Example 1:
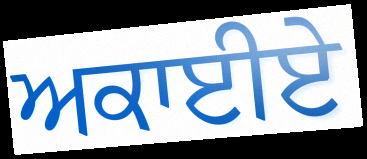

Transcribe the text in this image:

ਅਕਾਈਏ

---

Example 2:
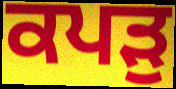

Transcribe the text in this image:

ਕਪੜੁ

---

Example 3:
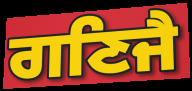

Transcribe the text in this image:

ਗਣਿਜੈ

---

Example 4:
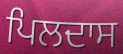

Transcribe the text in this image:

ਪਿਲਦਾਸ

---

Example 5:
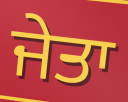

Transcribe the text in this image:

ਜੇਤਾ